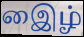
இைழ்